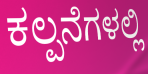
ಕಲ್ಪನೆಗಳಲ್ಲಿ